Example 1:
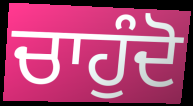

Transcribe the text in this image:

ਚਾਹੁੰਦੋ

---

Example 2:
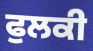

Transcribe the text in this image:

ਫੁਲਕੀ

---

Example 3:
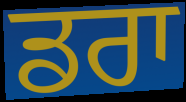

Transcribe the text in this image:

ਡਰਾ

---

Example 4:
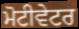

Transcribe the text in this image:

ਮੋਟੀਵੇਟਰ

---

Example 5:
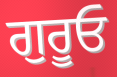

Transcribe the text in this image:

ਗੁਰੂਓ